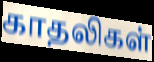
காதலிகள்